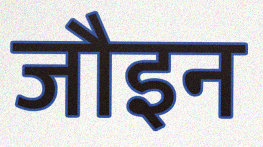
जौइन